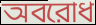
অবরোধ